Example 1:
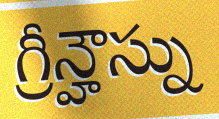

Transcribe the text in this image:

గ్రీన్హౌస్ను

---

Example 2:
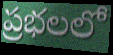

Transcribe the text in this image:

ప్రభలలో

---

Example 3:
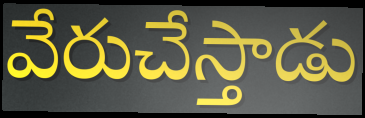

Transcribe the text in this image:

వేరుచేస్తాడు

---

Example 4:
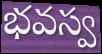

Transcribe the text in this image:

భవస్వ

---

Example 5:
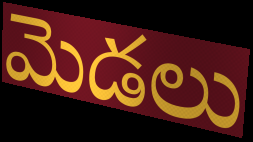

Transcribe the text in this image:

మెడలు